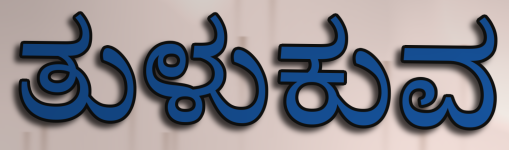
ತುಳುಕುವ